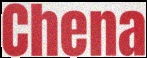
Chena